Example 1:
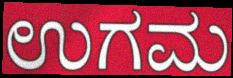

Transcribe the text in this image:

ಉಗಮ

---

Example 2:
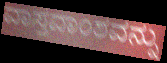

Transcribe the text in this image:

ವಾಸ್ತವಾಂಶವನ್ನು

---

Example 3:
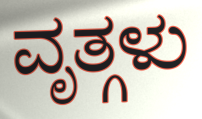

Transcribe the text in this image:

ವೃತ್ಗಳು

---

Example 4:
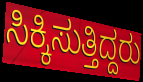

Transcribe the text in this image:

ಸಿಕ್ಕಿಸುತ್ತಿದ್ದರು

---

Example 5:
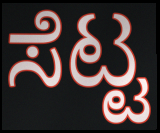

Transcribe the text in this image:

ಸೆಟ್ಟ